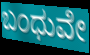
ಬಂಧುವೇ